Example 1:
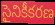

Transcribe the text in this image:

సైనికీకరణ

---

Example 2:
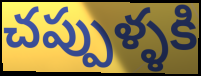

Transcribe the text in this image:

చప్పుళ్ళకి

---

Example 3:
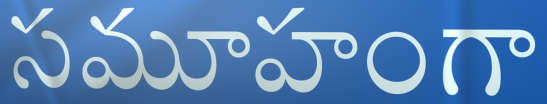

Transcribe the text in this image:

సమూహంగా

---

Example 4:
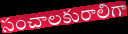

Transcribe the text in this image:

సంచాలకురాలిగా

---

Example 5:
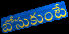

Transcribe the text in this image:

బోసుకుంటే